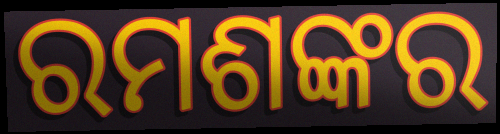
ରମଶଙ୍କର